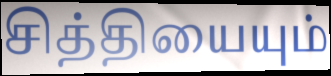
சித்தியையும்